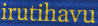
irutihavu